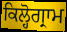
ਕਿਲ੍ਹੋਗ੍ਰਾਮ